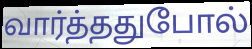
வார்த்ததுபோல்